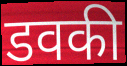
डवकी